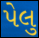
પેલુ